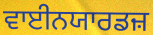
ਵਾਈਨਯਾਰਡਜ਼